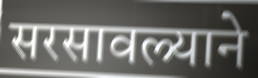
सरसावल्याने